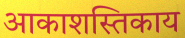
आकाशस्तिकाय